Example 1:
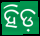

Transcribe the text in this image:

ହିଡ଼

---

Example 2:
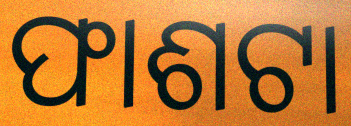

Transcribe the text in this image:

ଫାଶଟା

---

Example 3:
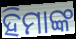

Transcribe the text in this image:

ହିମାଙ୍କ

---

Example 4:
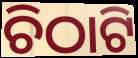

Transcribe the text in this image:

ଚିଠାଟି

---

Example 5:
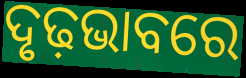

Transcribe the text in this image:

ଦୃଢ଼ଭାବରେ